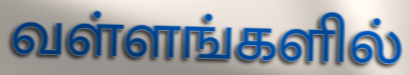
வள்ளங்களில்